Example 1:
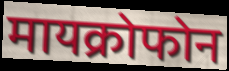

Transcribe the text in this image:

मायक्रोफोन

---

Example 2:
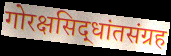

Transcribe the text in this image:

गोरक्षसिद्धांतसंग्रह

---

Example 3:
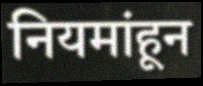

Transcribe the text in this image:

नियमांहून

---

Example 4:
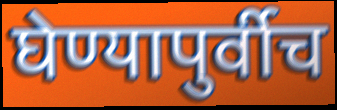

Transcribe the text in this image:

घेण्यापुर्वीच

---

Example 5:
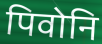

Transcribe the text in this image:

पिवोनि